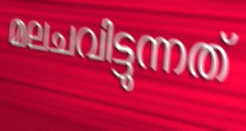
മലചവിട്ടുന്നത്